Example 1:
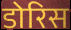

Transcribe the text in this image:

डोरिस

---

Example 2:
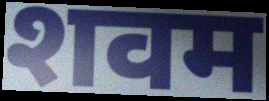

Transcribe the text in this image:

शवम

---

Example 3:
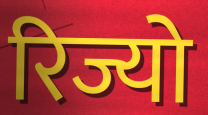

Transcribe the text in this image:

रिज्यो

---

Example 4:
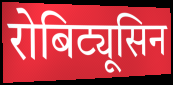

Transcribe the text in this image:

रोबिट्यूसिन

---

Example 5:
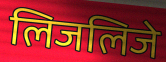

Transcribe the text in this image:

लिजलिजे